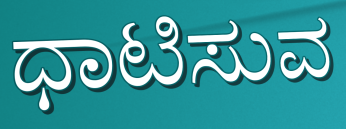
ಧಾಟಿಸುವ